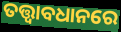
ତତ୍ତ୍ବାବଧାନରେ